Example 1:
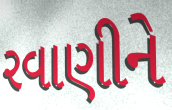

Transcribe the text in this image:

રવાણીને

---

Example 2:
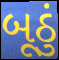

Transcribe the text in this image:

બૂઠું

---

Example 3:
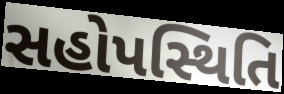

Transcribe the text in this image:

સહોપસ્થિતિ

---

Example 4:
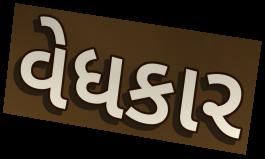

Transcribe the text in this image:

વેધકાર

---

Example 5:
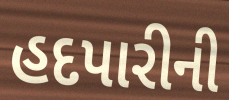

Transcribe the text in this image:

હદપારીની